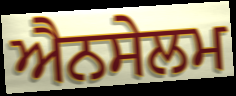
ਐਨਸੇਲਮ